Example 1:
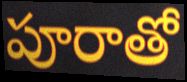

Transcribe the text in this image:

పూరాతో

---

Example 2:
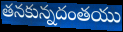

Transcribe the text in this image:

తనకున్నదంతయు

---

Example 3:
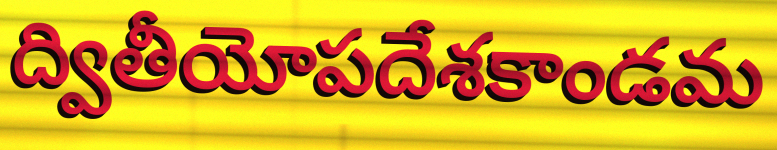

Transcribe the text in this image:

ద్వితీయోపదేశకాండమ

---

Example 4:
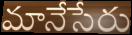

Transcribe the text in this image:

మానేసేరు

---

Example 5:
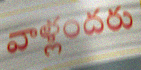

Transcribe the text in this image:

వాళ్లందరు